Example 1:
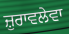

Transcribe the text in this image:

ਜ਼ੁਰਾਵਲੇਵਾ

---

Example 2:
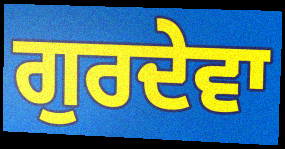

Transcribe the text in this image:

ਗੁਰਦੇਵਾ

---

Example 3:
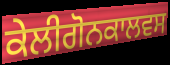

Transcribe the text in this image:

ਕੇਲੀਗੋਨਕਾਲਵਸ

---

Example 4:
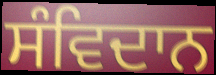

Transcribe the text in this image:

ਸੰਵਿਦਾਨ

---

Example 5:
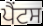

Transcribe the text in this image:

ਪੈਂਟਸ